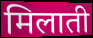
मिलाती